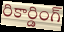
రికార్డింగ్